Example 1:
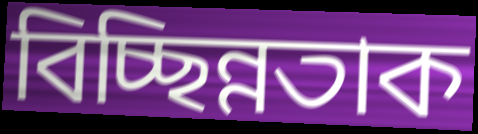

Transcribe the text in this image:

বিচ্ছিন্নতাক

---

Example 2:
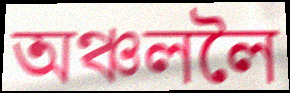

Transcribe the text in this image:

অঞ্চললৈ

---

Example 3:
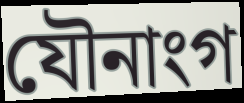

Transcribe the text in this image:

যৌনাংগ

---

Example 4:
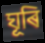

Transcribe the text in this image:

ঘূৰি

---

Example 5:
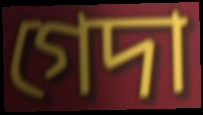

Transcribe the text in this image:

গেদা